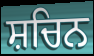
ਸ਼ਚਿਨ